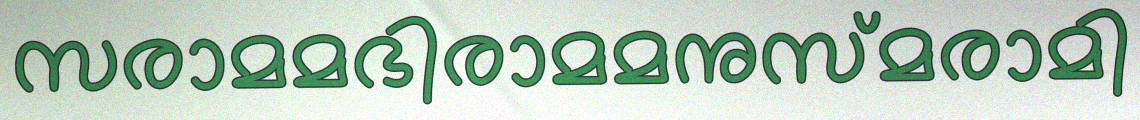
സരാമമഭിരാമമനുസ്മരാമി